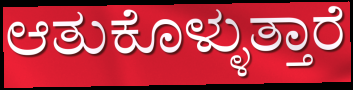
ಆತುಕೊಳ್ಳುತ್ತಾರೆ